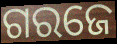
ଗରଜେ